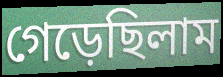
গেড়েছিলাম